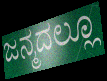
ಜನ್ಮದಲ್ಲೂ